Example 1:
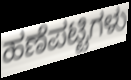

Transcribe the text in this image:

ಹಣೆಪಟ್ಟಿಗಳು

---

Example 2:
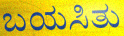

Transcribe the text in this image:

ಬಯಸಿತು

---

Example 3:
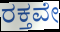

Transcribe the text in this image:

ರಕ್ತವೇ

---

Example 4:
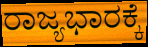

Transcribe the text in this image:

ರಾಜ್ಯಭಾರಕ್ಕೆ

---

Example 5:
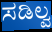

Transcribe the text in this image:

ಸಡಿಲ್ವ